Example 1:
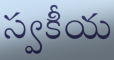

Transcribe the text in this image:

స్వకీయ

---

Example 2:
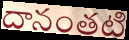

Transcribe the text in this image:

దానంతటి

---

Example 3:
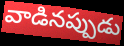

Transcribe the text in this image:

వాడినప్పుడు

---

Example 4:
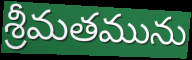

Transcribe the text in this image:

శ్రీమతమును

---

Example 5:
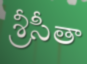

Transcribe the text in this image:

శ్రీసీతా